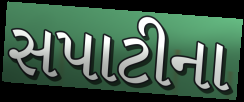
સપાટીના